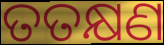
ତତକ୍ଷଣ